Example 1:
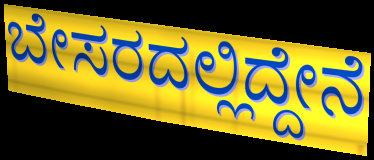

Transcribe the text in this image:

ಬೇಸರದಲ್ಲಿದ್ದೇನೆ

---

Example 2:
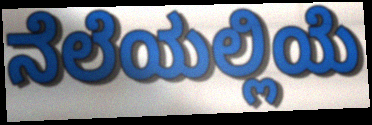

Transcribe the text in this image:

ನೆಲೆಯಲ್ಲಿಯೆ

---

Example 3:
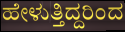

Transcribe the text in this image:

ಹೇಳುತ್ತಿದ್ದರಿಂದ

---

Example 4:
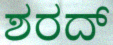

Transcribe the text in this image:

ಶರದ್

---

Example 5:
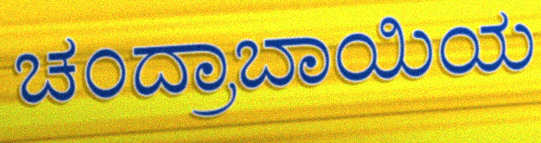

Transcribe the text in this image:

ಚಂದ್ರಾಬಾಯಿಯ